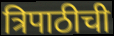
त्रिपाठीची